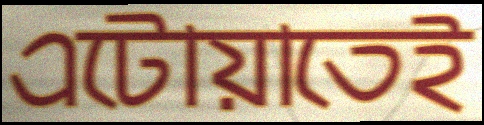
এটোয়াতেই